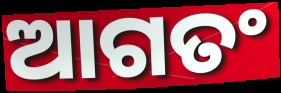
ଆଗତଂ